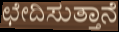
ಛೇದಿಸುತ್ತಾನೆ